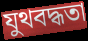
যুথবদ্ধতা